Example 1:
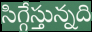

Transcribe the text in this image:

సిగ్గేస్తున్నది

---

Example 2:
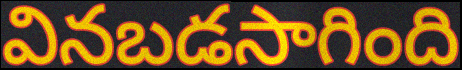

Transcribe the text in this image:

వినబడసాగింది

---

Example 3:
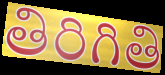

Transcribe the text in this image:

తిరిగితి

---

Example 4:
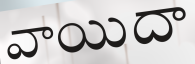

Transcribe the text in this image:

వాయిదా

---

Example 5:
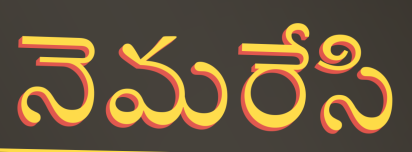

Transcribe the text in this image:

నెమరేసి